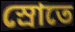
স্রোতে